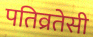
पतिव्रतेसी